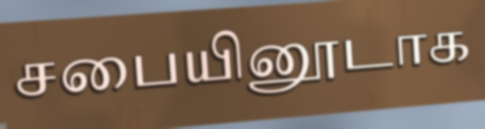
சபையினூடாக